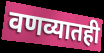
वणव्यातही